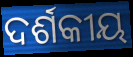
ଦର୍ଶକୀୟ